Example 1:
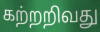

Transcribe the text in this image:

கற்றறிவது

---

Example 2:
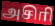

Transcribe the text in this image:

அசிரி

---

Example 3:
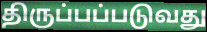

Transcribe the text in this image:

திருப்பப்படுவது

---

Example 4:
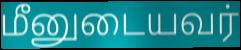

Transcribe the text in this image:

மீனுடையவர்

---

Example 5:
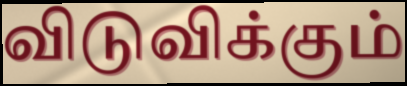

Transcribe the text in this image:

விடுவிக்கும்